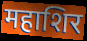
महाशिर